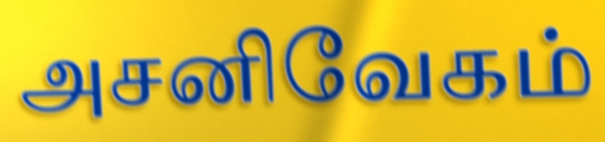
அசனிவேகம்